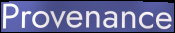
Provenance